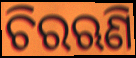
ଚିରଋଣି